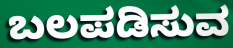
ಬಲಪಡಿಸುವ